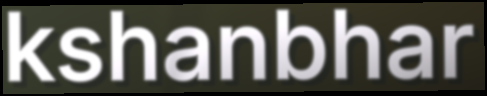
kshanbhar